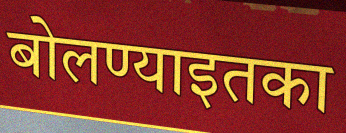
बोलण्याइतका